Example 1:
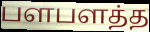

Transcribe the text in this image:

பளபளத்த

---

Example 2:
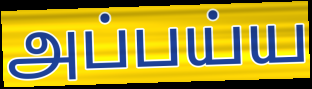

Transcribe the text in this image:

அப்பய்ய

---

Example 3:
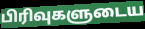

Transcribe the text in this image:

பிரிவுகளுடைய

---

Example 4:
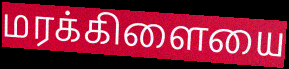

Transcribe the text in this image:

மரக்கிளையை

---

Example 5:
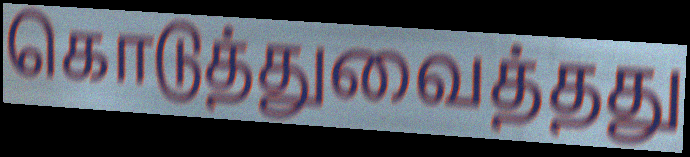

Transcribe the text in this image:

கொடுத்துவைத்தது